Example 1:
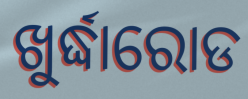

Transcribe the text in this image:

ଖୁର୍ଦ୍ଧାରୋଡ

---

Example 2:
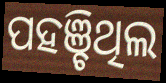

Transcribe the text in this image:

ପହଞ୍ଚିଥିଲ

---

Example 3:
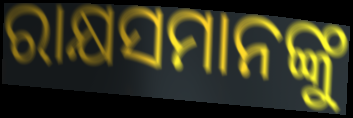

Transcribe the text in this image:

ରାକ୍ଷସମାନଙ୍କୁ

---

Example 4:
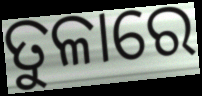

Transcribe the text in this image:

ତୁଳାରେ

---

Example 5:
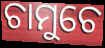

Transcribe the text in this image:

ଚାମୁଚେ